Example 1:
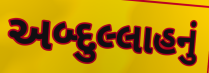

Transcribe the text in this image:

અબ્દુલ્લાહનું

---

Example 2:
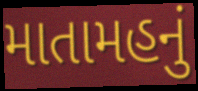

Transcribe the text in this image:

માતામહનું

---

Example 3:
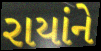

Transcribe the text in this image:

રાયાંને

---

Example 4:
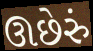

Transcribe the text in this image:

ઊછેરું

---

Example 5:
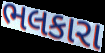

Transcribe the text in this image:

ભલકારા